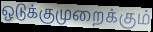
ஒடுக்குமுறைக்கும்